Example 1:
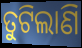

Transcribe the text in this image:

ତୁଟିଲାଣି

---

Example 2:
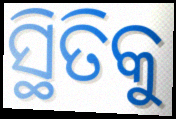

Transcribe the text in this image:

ସ୍ଥିତିକୁ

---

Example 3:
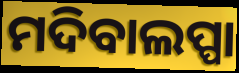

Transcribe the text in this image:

ମଦିବାଲପ୍ପା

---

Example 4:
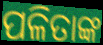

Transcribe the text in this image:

ପଳିତାଙ୍କ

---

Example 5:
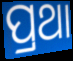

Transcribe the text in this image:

ପ୍ରଥା